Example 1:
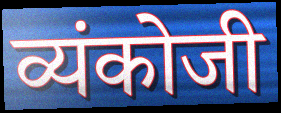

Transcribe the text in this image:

व्यंकोजी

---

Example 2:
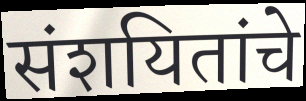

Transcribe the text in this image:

संशयितांचे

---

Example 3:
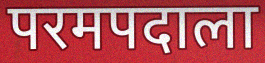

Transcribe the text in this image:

परमपदाला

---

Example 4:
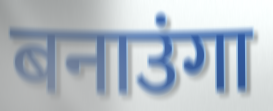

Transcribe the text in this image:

बनाउंगा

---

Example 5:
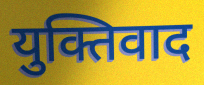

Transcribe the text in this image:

युक्तिवाद